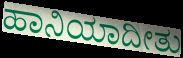
ಹಾನಿಯಾದೀತು